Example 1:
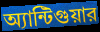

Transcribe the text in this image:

অ্যান্টিগুয়ার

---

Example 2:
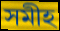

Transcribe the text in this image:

সমীহ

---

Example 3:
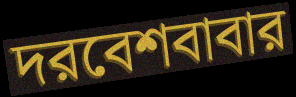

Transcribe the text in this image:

দরবেশবাবার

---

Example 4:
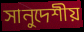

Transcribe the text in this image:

সানুদেশীয়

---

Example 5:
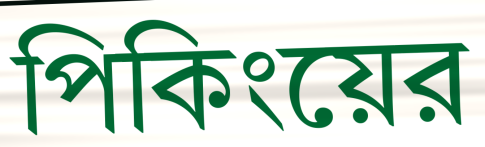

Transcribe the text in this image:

পিকিংয়ের